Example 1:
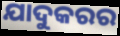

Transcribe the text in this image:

ଯାଦୁକରର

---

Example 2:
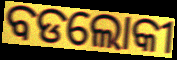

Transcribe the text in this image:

ବଡଲୋକୀ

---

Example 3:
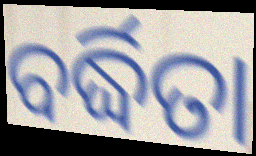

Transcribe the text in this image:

ବର୍ଦ୍ଧିତା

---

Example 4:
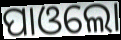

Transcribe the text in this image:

ପାଓଲୋ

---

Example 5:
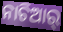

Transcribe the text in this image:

ନାଚିଆର୍